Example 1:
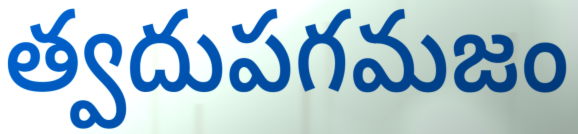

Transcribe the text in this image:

త్వదుపగమజం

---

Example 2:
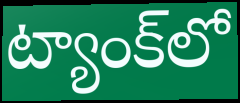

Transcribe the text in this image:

ట్యాంక్‌లో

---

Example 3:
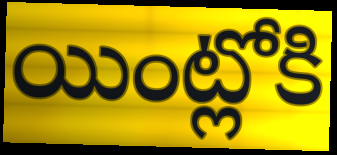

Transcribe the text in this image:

యింట్లోకి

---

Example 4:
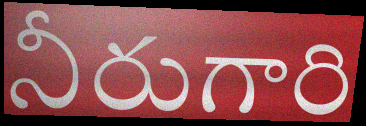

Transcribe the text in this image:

నీరుగారి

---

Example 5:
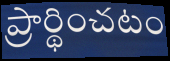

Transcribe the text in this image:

ప్రార్థించటం